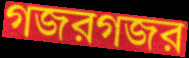
গজরগজর